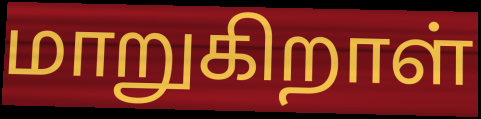
மாறுகிறாள்